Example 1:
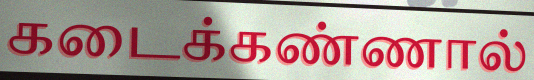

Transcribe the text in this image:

கடைக்கண்ணால்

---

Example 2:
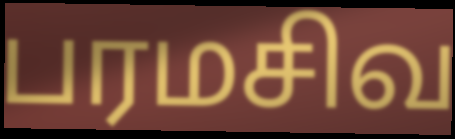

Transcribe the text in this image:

பரமசிவ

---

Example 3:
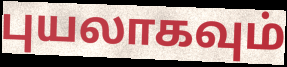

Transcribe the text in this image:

புயலாகவும்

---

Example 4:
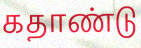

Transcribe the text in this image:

கதாண்டு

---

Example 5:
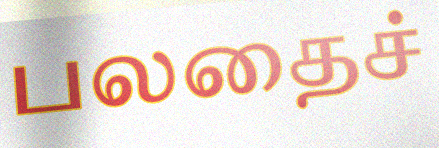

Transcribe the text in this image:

பலதைச்